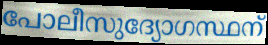
പോലീസുദ്യോഗസ്ഥന്